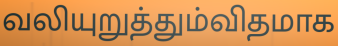
வலியுறுத்தும்விதமாக